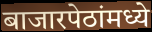
बाजारपेठांमध्ये